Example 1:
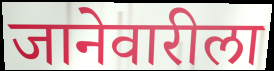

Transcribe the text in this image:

जानेवारीला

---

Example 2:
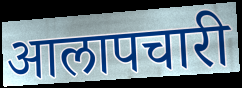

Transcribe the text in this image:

आलापचारी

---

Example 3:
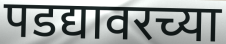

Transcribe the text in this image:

पडद्यावरच्या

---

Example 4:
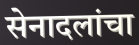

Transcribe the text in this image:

सेनादलांचा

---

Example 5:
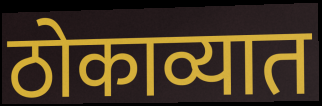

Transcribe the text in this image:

ठोकाव्यात